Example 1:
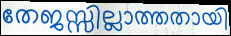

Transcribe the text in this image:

തേജസ്സില്ലാത്തതായി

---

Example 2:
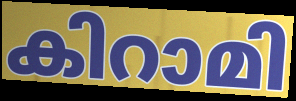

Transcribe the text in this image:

കിറാമി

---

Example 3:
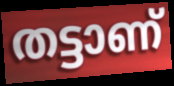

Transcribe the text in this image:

തട്ടാണ്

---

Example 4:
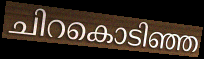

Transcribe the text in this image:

ചിറകൊടിഞ്ഞ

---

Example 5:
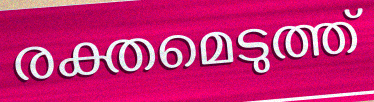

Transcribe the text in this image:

രക്തമെടുത്ത്